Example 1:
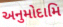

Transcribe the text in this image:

અનુમોદામિ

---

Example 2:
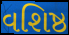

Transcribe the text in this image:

વશિષ્ઠ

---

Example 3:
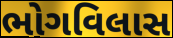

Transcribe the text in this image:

ભોગવિલાસ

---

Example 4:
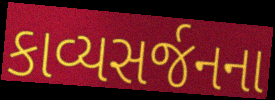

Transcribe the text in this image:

કાવ્યસર્જનના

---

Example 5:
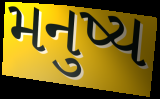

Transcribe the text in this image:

મનુષ્ય